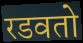
रडवतो